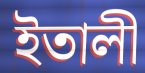
ইতালী